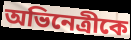
অভিনেত্রীকে